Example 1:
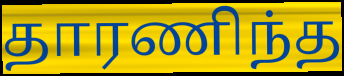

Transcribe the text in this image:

தாரணிந்த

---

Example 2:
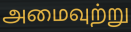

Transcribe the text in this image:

அமைவுற்று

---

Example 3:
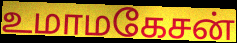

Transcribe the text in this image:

உமாமகேசன்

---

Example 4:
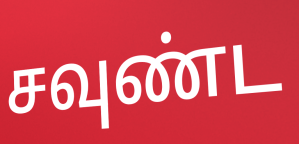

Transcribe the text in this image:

சவுண்ட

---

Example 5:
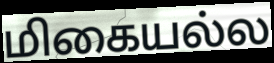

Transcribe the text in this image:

மிகையல்ல